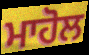
ਮਾਹੋਲ